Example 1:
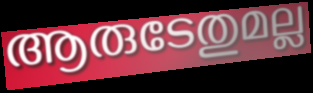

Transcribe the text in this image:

ആരുടേതുമല്ല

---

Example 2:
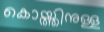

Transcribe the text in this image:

കൊയ്ത്തിനുള്ള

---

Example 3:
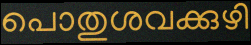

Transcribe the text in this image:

പൊതുശവക്കുഴി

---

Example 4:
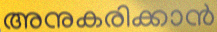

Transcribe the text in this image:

അനുകരിക്കാൻ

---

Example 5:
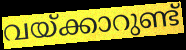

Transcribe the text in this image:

വയ്ക്കാറുണ്ട്